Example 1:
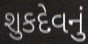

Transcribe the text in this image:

શુકદેવનું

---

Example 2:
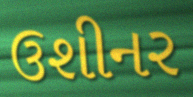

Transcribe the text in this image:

ઉશીનર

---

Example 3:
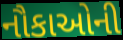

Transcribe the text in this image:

નૌકાઓની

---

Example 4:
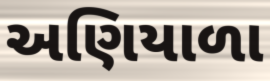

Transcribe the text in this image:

અણિયાળા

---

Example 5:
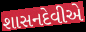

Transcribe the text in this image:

શાસનદેવીએ